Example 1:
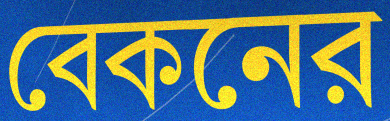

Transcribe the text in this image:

বেকনের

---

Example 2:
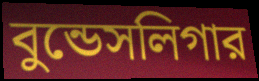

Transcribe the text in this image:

বুন্ডেসলিগার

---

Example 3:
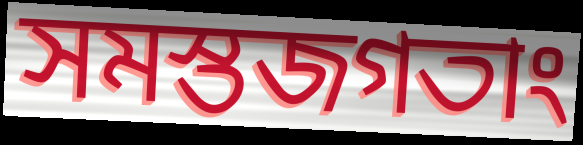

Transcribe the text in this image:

সমস্তজগতাং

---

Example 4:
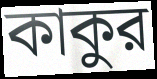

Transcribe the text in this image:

কাকুর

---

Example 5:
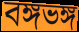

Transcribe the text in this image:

বঙ্গভঙ্গ